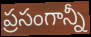
ప్రసంగాన్నీ